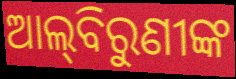
ଆଲ୍‌ବିରୁଣୀଙ୍କ